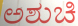
ಅಶುಚಿ